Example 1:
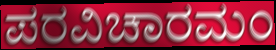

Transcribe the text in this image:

ಪರವಿಚಾರಮಂ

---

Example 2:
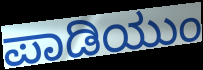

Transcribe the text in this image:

ಪಾಡಿಯುಂ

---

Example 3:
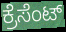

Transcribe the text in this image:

ಕ್ರೆಸೆಂಟ್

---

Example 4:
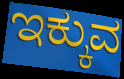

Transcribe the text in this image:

ಇಕ್ಕುವ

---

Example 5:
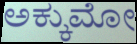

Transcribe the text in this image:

ಅಕ್ಕುಮೋ